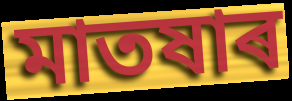
মাতষাৰ